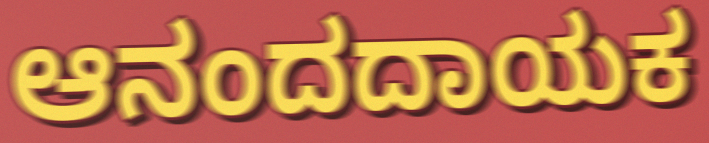
ಆನಂದದಾಯಕ